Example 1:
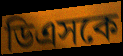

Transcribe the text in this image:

ডিএসকে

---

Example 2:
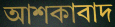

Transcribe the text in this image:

আশকাবাদ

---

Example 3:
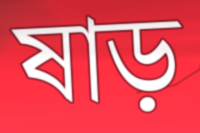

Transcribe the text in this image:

ষাড়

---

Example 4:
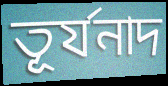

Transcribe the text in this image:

তূর্যনাদ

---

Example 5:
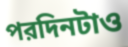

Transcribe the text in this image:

পরদিনটাও